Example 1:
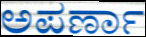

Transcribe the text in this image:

ಅಪರ್ಣಾ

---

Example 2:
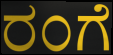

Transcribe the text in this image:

ರಂಗೆ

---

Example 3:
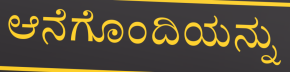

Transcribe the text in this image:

ಆನೆಗೊಂದಿಯನ್ನು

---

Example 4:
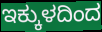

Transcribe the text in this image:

ಇಕ್ಕುಳದಿಂದ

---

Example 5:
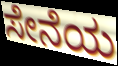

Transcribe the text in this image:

ಸೇನೆಯ